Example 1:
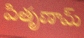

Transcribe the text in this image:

పితృణామ్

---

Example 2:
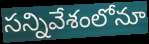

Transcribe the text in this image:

సన్నివేశంలోనూ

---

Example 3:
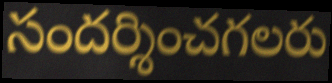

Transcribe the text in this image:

సందర్శించగలరు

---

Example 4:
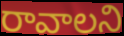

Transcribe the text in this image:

రావాలని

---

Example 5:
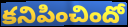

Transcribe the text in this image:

కనిపించిందో